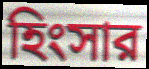
হিংসার